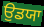
ਉਡਯਾ